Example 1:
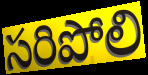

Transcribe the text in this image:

సరిపోలి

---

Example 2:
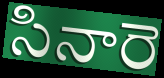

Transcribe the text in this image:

సినారె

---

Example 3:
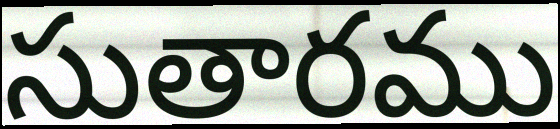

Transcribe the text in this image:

సుతారము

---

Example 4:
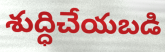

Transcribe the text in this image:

శుద్ధిచేయబడి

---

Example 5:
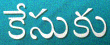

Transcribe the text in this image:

కేసుకు